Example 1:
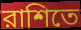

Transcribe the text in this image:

রাশিতে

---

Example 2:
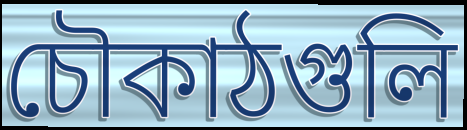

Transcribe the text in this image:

চৌকাঠগুলি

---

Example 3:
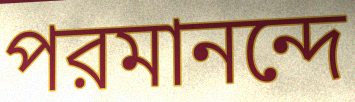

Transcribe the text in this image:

পরমানন্দে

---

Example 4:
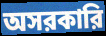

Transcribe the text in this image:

অসরকারি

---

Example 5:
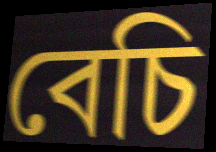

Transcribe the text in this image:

বেচি